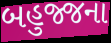
બહુજ્જના